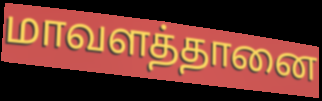
மாவளத்தானை